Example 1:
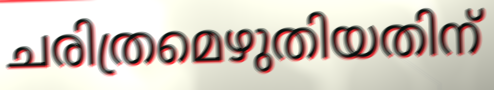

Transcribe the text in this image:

ചരിത്രമെഴുതിയതിന്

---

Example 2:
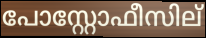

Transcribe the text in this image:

പോസ്റ്റോഫീസില്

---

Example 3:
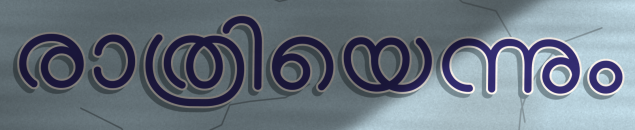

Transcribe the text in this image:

രാത്രിയെന്നും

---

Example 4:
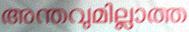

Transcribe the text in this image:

അന്തവുമില്ലാത്ത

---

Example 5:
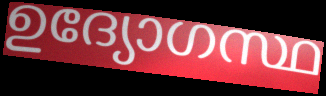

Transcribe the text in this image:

ഉദ്യോഗസ്ഥ